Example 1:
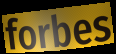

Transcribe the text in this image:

forbes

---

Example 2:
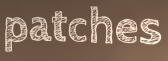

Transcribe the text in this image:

patches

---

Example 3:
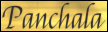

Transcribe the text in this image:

Panchala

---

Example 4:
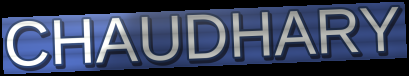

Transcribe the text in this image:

CHAUDHARY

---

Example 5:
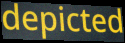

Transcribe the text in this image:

depicted